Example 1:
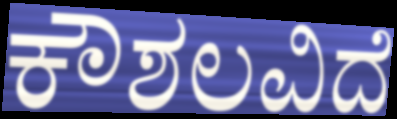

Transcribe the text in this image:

ಕೌಶಲವಿದೆ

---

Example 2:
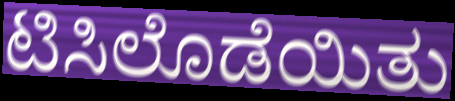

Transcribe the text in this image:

ಟಿಸಿಲೊಡೆಯಿತು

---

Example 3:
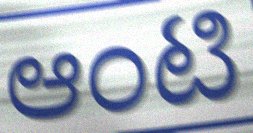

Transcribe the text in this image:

ಆಂಟಿ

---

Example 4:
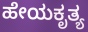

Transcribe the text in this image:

ಹೇಯಕೃತ್ಯ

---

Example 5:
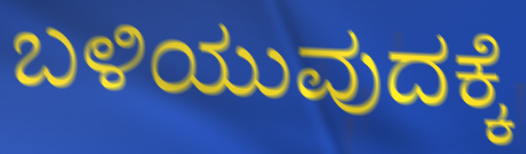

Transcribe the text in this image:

ಬಳಿಯುವುದಕ್ಕೆ